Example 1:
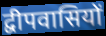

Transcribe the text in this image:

द्वीपवासियों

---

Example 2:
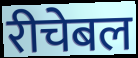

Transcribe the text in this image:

रीचेबल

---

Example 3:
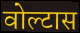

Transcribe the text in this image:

वोल्टास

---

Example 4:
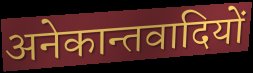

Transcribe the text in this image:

अनेकान्तवादियों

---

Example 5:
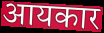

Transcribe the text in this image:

आयकार